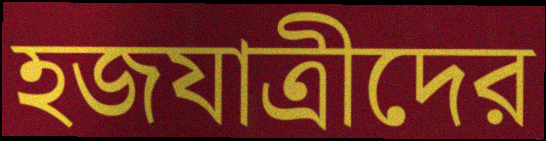
হজযাত্রীদের